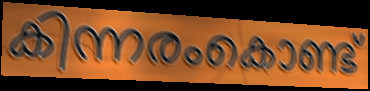
കിന്നരംകൊണ്ട്